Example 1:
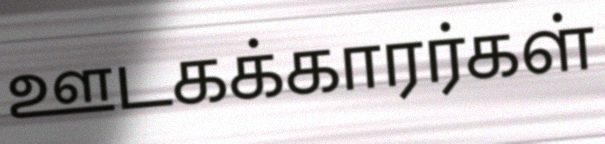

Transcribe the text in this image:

ஊடகக்காரர்கள்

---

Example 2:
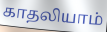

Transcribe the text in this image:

காதலியாம்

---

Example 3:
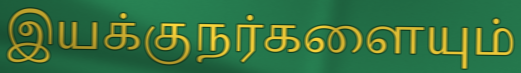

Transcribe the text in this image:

இயக்குநர்களையும்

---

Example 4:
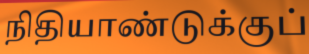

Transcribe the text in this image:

நிதியாண்டுக்குப்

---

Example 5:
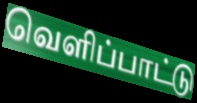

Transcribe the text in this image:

வெளிப்பாட்டு